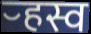
ऱ्हस्व